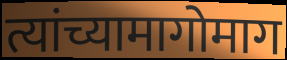
त्यांच्यामागोमाग